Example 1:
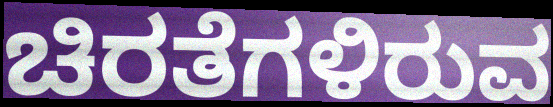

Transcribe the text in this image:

ಚಿರತೆಗಳಿರುವ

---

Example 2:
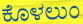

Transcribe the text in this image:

ಕೊಳಲುಂ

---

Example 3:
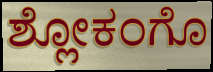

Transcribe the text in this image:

ಶ್ಲೋಕಂಗೊ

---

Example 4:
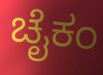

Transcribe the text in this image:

ಚೈಕಂ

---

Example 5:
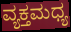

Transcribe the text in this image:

ವ್ಯಕ್ತಮಧ್ಯ